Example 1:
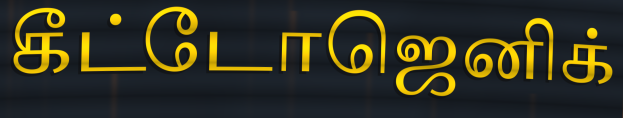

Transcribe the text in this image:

கீட்டோஜெனிக்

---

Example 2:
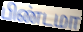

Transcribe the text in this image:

பிண்டமா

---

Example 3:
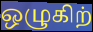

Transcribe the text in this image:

ஒழுகிற்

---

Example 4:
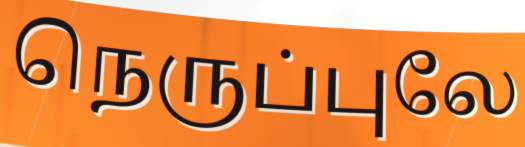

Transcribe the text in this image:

நெருப்புலே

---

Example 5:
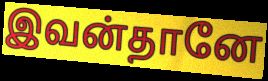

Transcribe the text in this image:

இவன்தானே